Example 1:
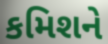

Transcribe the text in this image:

કમિશને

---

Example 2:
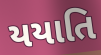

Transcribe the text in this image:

યયાતિ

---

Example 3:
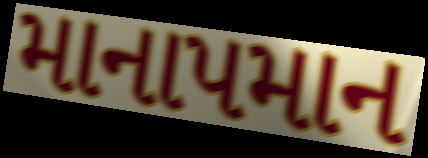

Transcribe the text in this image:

માનાપમાન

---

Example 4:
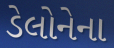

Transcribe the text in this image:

ડેલોનેના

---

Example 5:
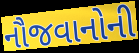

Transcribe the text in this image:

નૌજવાનોની